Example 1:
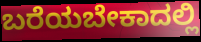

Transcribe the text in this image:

ಬರೆಯಬೇಕಾದಲ್ಲಿ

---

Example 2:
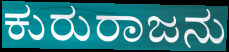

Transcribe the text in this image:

ಕುರುರಾಜನು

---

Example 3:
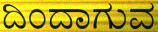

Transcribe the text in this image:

ದಿಂದಾಗುವ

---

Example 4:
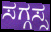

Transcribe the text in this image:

ಸಗ್ಗಸ್ಸ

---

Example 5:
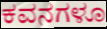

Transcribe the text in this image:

ಕವನಗಳೂ